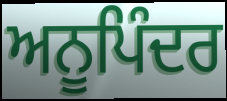
ਅਨੂਪਿੰਦਰ